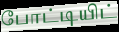
போட்டியிட்